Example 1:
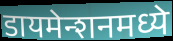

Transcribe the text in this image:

डायमेन्शनमध्ये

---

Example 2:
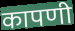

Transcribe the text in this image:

कापणी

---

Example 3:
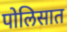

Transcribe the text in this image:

पोलिसात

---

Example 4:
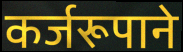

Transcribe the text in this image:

कर्जरूपाने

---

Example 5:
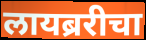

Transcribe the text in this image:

लायब्ररीचा